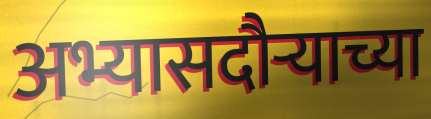
अभ्यासदौऱ्याच्या